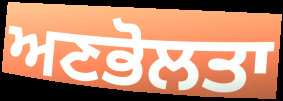
ਅਣਭੋਲਤਾ